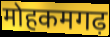
मोहकमगढ़